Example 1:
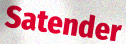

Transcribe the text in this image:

Satender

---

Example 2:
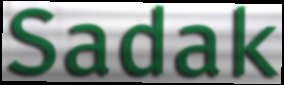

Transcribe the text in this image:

Sadak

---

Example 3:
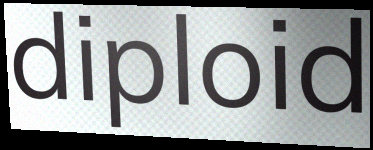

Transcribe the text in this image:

diploid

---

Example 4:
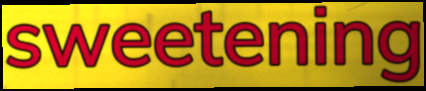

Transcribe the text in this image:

sweetening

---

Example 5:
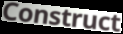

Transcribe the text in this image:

Construct